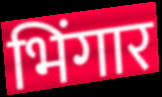
भिंगार